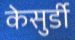
केसुर्डी